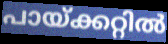
പായ്ക്കറ്റിൽ